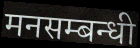
मनसम्बन्धी